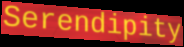
Serendipity